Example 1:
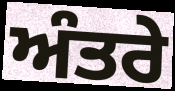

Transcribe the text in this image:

ਅੰਤਰੇ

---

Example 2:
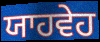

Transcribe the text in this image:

ਯਾਹਵੇਹ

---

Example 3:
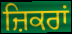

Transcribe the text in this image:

ਜ਼ਿਕਰਾਂ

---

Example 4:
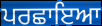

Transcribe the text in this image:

ਪਰਛਾਇਆ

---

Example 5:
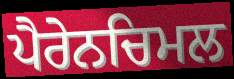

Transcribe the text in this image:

ਪੈਰੇਨਚਿਮਲ